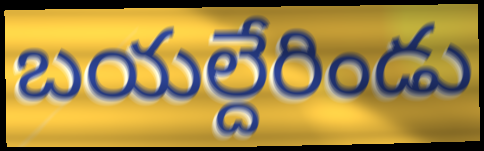
బయల్దేరిండు